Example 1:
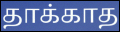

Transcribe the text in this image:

தாக்காத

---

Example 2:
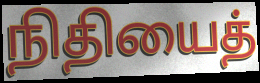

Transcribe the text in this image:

நிதியைத்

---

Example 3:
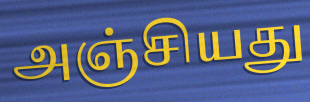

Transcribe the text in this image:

அஞ்சியது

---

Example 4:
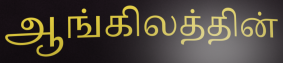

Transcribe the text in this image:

ஆங்கிலத்தின்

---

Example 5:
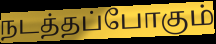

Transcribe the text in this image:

நடத்தப்போகும்